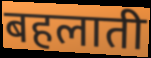
बहलाती